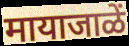
मायाजाळें